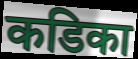
कडिका